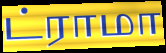
ட்ராமா